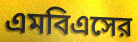
এমবিএসের